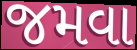
જમવા